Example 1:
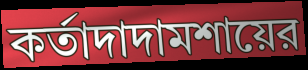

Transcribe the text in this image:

কর্তাদাদামশায়ের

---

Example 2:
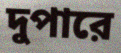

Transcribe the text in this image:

দুপারে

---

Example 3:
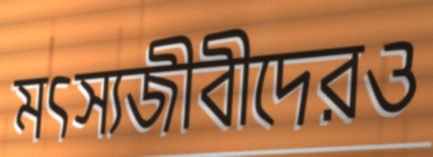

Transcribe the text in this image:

মৎস্যজীবীদেরও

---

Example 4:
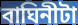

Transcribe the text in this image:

বাঘিনীটা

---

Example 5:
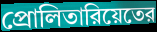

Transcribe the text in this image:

প্রোলিতারিয়েতের